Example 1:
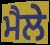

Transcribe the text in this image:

ਮੈਲੇ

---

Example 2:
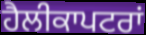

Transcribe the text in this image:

ਹੈਲੀਕਾਪਟਰਾਂ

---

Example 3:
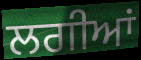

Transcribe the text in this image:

ਲਗੀਆਂ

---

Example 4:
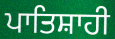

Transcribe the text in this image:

ਪਾਤਿਸ਼ਾਹੀ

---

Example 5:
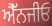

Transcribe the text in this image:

ਐੱਨਜੀਓ